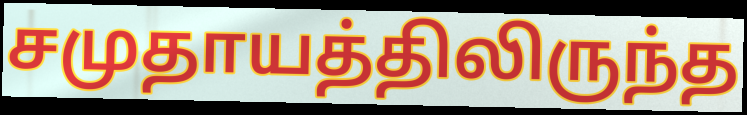
சமுதாயத்திலிருந்த